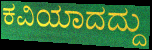
ಕವಿಯಾದದ್ದು